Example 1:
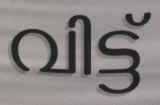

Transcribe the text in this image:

വിട്ട്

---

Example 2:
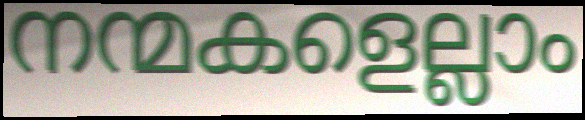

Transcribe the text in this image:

നന്മകളെല്ലാം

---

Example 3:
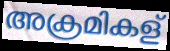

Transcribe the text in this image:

അക്രമികള്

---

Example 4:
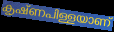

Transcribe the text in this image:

കൃഷ്‌ണപിള്ളയാണ്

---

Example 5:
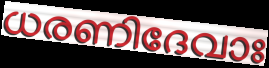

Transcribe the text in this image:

ധരണിദേവാഃ